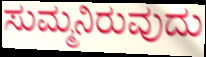
ಸುಮ್ಮನಿರುವುದು